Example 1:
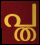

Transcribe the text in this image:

പ്ത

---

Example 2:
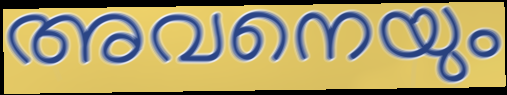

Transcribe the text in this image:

അവനെയും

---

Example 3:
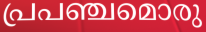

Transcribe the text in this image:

പ്രപഞ്ചമൊരു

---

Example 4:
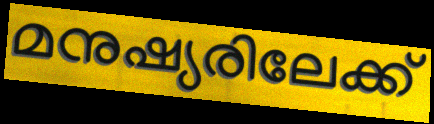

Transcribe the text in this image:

മനുഷ്യരിലേക്ക്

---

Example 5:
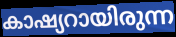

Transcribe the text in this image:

കാഷ്യറായിരുന്ന